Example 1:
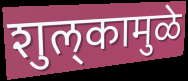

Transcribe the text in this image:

शुल्कामुळे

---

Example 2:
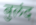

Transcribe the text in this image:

बुलंद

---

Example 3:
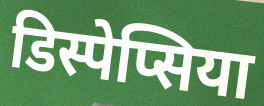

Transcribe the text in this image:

डिस्पेप्सिया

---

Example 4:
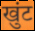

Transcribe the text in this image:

खुंट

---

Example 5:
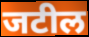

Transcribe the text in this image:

जटील